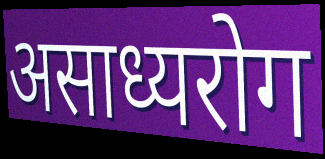
असाध्यरोग